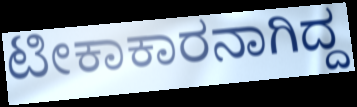
ಟೀಕಾಕಾರನಾಗಿದ್ದ